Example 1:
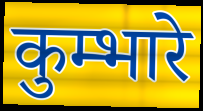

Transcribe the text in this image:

कुम्भारे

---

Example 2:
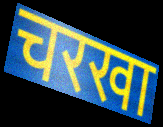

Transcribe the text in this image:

चरखा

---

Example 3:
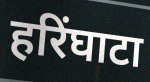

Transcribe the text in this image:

हरिंघाटा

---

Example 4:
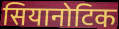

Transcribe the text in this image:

सियानोटिक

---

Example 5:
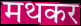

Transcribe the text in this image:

मथकर